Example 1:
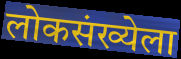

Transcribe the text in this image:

लोकसंख्येला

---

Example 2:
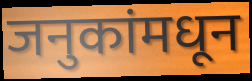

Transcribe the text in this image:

जनुकांमधून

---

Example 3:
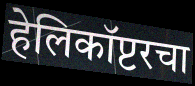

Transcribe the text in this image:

हेलिकॉप्टरचा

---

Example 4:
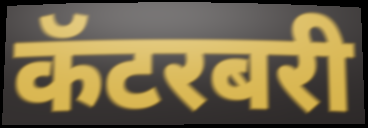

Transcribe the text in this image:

कॅटरबरी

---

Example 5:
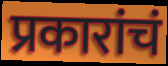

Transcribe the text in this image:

प्रकारांचं